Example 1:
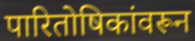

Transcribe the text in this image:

पारितोषिकांवरून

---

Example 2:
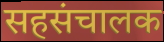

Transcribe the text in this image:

सहसंचालक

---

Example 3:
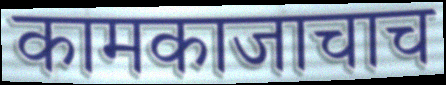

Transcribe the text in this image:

कामकाजाचाच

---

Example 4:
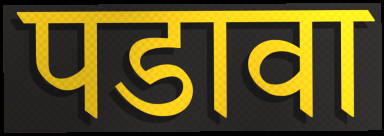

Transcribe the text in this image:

पडावा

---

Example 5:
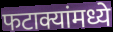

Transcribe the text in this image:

फटाक्यांमध्ये